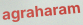
agraharam